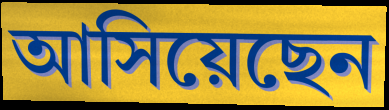
আসিয়েছেন